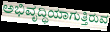
ಅಭಿವೃದ್ಧಿಯಾಗುತ್ತಿರುವ